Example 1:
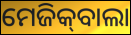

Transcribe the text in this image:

ମେଜିକ୍‍ବାଲା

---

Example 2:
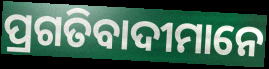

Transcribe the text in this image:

ପ୍ରଗତିବାଦୀମାନେ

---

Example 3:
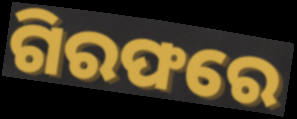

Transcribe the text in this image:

ଗିରଫରେ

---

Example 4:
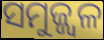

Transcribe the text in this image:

ସମୁଜ୍ଜ୍ୱଳ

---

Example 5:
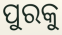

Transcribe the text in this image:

ପୁରକୁ